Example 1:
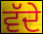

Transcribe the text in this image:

ਵੱਦੇ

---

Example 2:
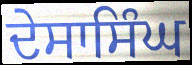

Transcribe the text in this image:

ਦੇਸਾਸਿੰਘ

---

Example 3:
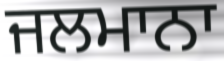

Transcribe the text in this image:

ਜਲਮਾਨਾ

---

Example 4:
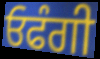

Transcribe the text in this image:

ਓਫੰਗੀ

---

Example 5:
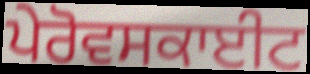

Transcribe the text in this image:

ਪੇਰੋਵਸਕਾਈਟ